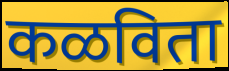
कळविता